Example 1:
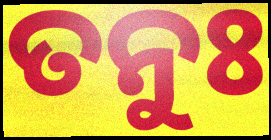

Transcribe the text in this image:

ତନୁଃ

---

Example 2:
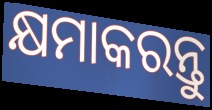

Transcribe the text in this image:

କ୍ଷମାକରନ୍ତୁ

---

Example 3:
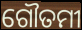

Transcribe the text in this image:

ଗୌତମୀ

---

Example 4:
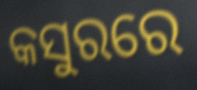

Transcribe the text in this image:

କସୁରରେ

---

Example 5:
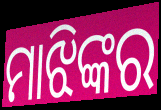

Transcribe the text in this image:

ମାଝିଙ୍କର